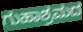
ಗುಹಾಶ್ರಮದ